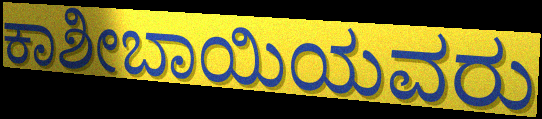
ಕಾಶೀಬಾಯಿಯವರು